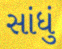
સાંધું